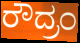
ರೌದ್ರಂ